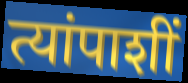
त्यांपाशीं